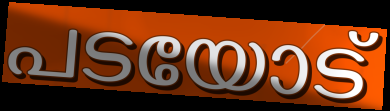
പടയോട്